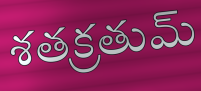
శతక్రతుమ్